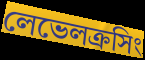
লেভেলক্রসিং